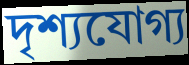
দৃশ্যযোগ্য